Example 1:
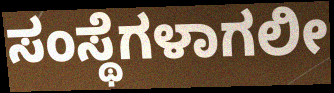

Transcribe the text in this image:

ಸಂಸ್ಥೆಗಳಾಗಲೀ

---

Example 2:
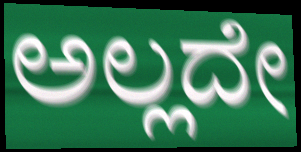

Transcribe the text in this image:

ಅಲ್ಲದೇ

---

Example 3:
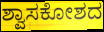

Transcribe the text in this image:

ಶ್ವಾಸಕೋಶದ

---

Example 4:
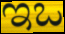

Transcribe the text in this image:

ಇಒ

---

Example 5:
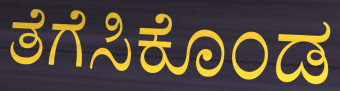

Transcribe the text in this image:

ತೆಗೆಸಿಕೊಂಡ